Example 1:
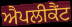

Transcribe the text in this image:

ਐਪਲੀਕੈਂਟ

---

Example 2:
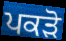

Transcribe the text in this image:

ਪਕੜੋ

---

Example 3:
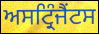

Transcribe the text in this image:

ਅਸਟ੍ਰਿੰਜੈਂਟਸ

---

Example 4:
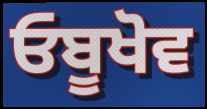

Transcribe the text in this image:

ਓਬੂਖੋਵ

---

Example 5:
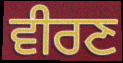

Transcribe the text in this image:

ਵੀਰਣ